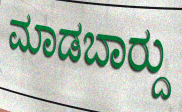
ಮಾಡಬಾರ್‍ದು